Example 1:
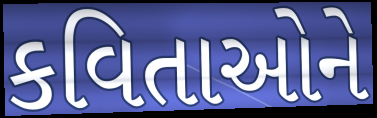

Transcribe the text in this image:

કવિતાઓને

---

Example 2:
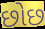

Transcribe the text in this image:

છોછ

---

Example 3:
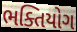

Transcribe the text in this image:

ભક્તિયોગ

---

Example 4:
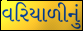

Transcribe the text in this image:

વરિયાળીનું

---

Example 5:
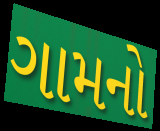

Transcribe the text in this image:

ગામનો